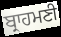
ਬ੍ਰਾਹਮਣੀ